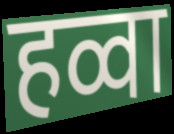
हव्वा